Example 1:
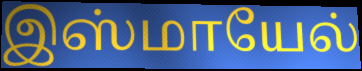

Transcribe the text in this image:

இஸ்மாயேல்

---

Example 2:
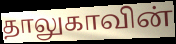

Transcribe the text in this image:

தாலுகாவின்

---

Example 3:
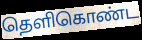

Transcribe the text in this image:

தெளிகொண்ட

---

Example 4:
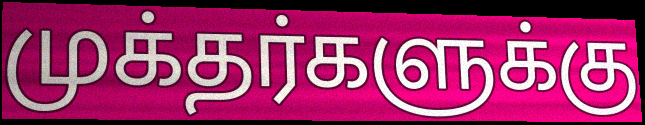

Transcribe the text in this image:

முக்தர்களுக்கு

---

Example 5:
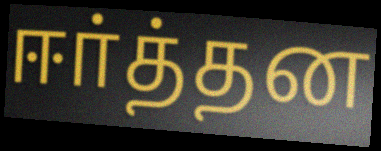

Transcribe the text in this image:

ஈர்த்தன